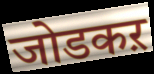
जोडकऱ